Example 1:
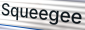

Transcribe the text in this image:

Squeegee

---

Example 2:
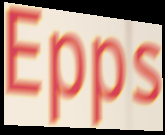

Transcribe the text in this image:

Epps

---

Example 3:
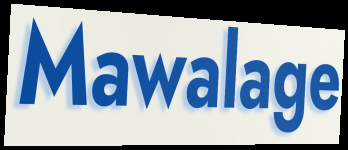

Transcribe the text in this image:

Mawalage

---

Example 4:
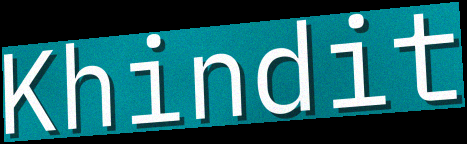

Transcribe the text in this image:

Khindit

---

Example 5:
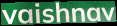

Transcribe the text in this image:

vaishnav